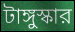
টাঙ্গুস্কার